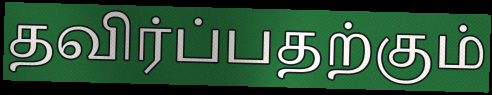
தவிர்ப்பதற்கும்